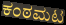
ಕಂಠಮಟ